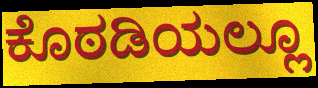
ಕೊಠಡಿಯಲ್ಲೂ